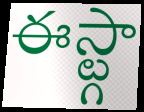
ఈస్ట్గా